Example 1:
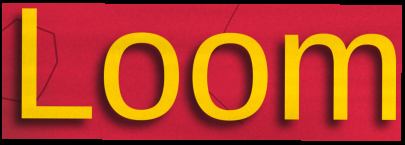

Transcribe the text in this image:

Loom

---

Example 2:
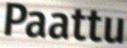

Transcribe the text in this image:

Paattu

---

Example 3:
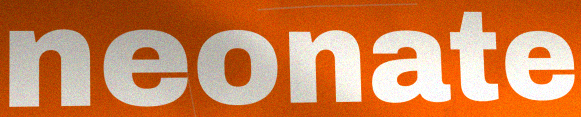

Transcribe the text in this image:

neonate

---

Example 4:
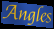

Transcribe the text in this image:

Angles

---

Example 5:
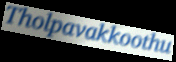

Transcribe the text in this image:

Tholpavakkoothu